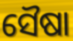
ସୈଷା